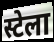
स्टेला